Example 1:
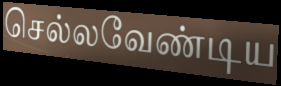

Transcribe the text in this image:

செல்லவேண்டிய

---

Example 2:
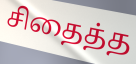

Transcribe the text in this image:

சிதைத்த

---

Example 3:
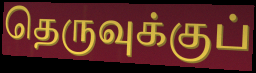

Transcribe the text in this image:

தெருவுக்குப்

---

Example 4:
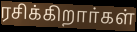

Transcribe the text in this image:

ரசிக்கிறார்கள்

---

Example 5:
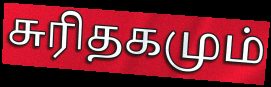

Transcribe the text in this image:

சுரிதகமும்